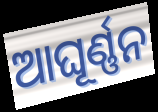
ଆଘୂର୍ଣ୍ଣନ